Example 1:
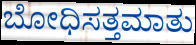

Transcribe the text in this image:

ಬೋಧಿಸತ್ತಮಾತು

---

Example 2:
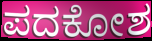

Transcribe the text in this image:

ಪದಕೋಶ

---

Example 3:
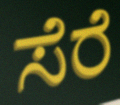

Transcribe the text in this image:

ಸೆರೆ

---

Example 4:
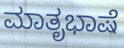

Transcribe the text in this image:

ಮಾತೃಭಾಷೆ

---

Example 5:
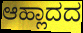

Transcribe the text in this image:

ಆಹ್ಲಾದದ